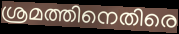
ശ്രമത്തിനെതിരെ